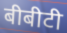
बीबीटी